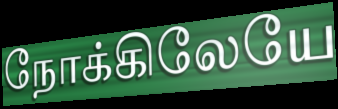
நோக்கிலேயே